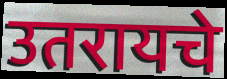
उतरायचे